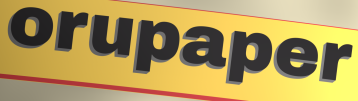
orupaper